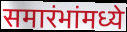
समारंभांमध्ये